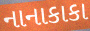
નાનાકાકા